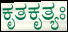
ಕೃತಕೃತ್ಯಃ